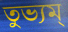
তুভ্যম্